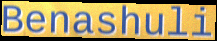
Benashuli